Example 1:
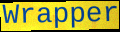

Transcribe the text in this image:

Wrapper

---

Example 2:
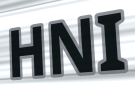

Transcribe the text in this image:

HNI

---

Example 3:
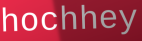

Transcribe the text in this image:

hochhey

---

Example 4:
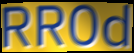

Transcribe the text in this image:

RROd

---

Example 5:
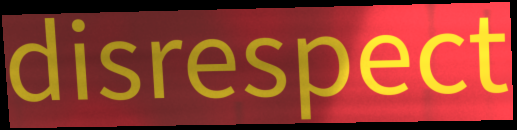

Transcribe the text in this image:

disrespect